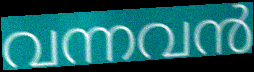
വന്നവൻ